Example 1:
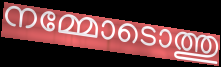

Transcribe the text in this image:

നമ്മോടൊത്തു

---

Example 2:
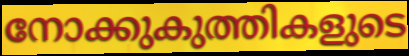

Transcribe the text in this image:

നോക്കുകുത്തികളുടെ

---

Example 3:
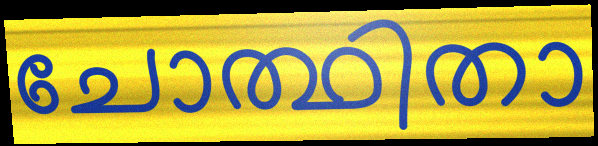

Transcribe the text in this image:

ചോത്ഥിതാ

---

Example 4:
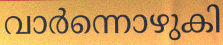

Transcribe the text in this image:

വാർന്നൊഴുകി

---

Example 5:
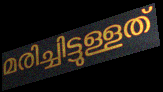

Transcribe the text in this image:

മരിച്ചിട്ടുള്ളത്